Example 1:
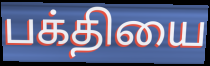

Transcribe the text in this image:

பக்தியை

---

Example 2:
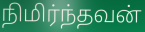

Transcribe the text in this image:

நிமிர்ந்தவன்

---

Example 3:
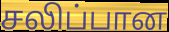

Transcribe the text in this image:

சலிப்பான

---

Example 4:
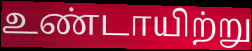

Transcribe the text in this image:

உண்டாயிற்று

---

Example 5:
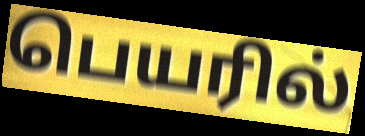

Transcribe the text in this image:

பெயரில்